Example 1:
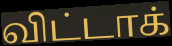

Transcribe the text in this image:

விட்டாக்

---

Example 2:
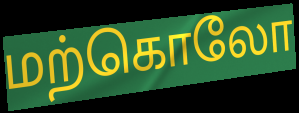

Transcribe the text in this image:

மற்கொலோ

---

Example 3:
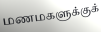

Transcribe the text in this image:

மணமகளுக்குக்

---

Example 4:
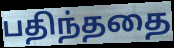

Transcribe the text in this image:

பதிந்ததை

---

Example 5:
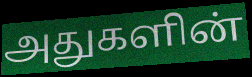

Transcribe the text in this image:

அதுகளின்